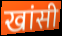
खांसी